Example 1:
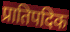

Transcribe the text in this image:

प्रातिपदिक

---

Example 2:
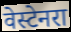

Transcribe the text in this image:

वेस्टेनरा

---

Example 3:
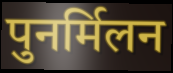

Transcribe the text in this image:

पुनर्मिलन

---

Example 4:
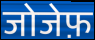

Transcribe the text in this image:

जोजेफ़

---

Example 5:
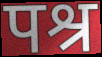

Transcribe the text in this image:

पश्र